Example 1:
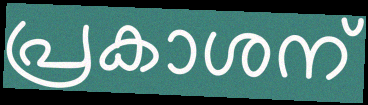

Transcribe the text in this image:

പ്രകാശന്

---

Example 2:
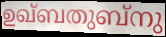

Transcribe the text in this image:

ഉഖ്ബതുബ്നു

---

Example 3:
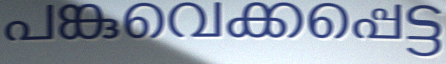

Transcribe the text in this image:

പങ്കുവെക്കപ്പെട്ട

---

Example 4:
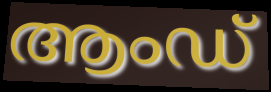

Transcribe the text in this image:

ആംഡ്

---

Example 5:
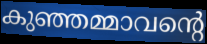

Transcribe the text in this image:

കുഞ്ഞമ്മാവന്റെ